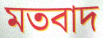
মতবাদ